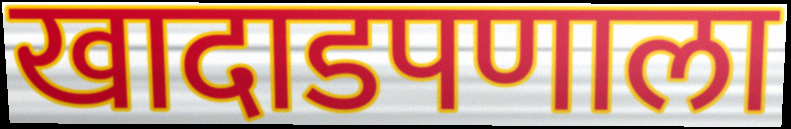
खादाडपणाला